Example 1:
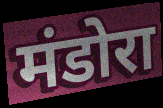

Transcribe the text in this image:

मंडोरा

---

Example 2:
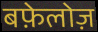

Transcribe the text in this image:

बफ़ेलोज़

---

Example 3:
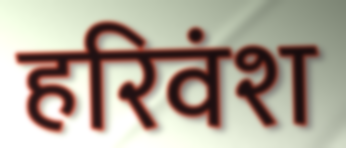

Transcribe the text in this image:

हरिवंश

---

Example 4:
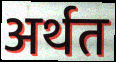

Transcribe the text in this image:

अर्थत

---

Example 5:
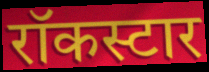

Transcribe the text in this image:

रॉकस्टार